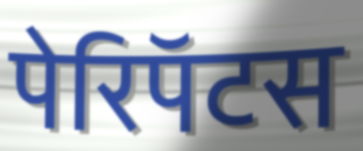
पेरिपॅटस